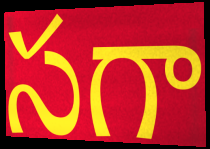
సగా